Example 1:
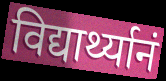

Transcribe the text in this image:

विद्यार्थ्यानं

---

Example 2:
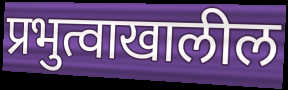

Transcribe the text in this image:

प्रभुत्वाखालील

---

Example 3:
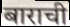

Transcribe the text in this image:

बाराची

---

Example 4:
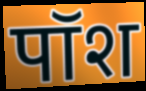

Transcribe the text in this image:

पॉश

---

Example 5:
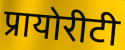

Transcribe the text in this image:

प्रायोरीटी